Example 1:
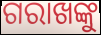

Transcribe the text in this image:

ଗରାଖଙ୍କୁ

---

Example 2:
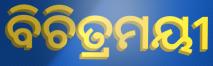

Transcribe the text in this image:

ବିଚିତ୍ରମୟୀ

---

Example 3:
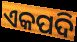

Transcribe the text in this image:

ଏକପଦି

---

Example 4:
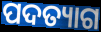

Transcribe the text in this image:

ପଦତ୍ୟାଗ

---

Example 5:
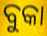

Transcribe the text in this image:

ବୁକା